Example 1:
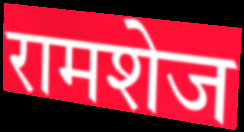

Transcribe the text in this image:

रामशेज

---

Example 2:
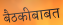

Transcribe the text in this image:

बैठकीबाबत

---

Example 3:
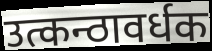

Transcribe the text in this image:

उत्कन्ठावर्धक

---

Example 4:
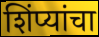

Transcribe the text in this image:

शिंप्यांचा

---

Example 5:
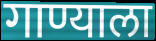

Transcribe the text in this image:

गाण्याला